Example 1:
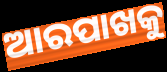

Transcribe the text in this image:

ଆରପାଖକୁ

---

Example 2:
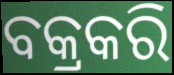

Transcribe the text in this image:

ବକ୍ରକରି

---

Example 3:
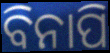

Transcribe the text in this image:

ବିନାପି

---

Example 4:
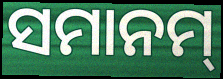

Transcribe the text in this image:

ସମାନମ୍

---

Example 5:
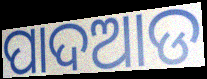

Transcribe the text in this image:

ପାଦଆଡ